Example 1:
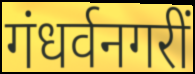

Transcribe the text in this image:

गंधर्वनगरीं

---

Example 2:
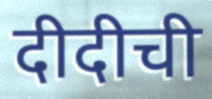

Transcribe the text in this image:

दीदीची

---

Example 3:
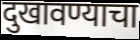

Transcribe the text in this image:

दुखावण्याचा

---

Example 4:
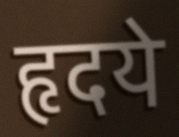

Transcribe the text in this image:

हृदये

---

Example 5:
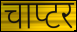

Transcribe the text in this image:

चाप्टर